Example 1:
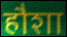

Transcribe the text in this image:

हौशा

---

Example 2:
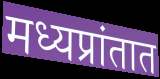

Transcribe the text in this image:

मध्यप्रांतात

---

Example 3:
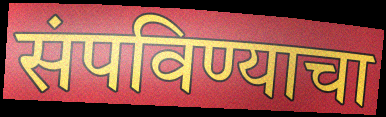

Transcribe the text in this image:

संपविण्याचा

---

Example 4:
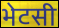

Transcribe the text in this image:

भेटसी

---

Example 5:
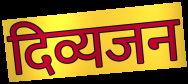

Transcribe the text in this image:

दिव्यजन